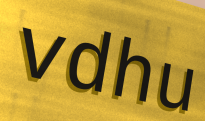
vdhu